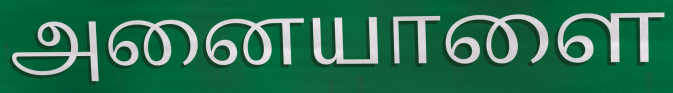
அனையாளை